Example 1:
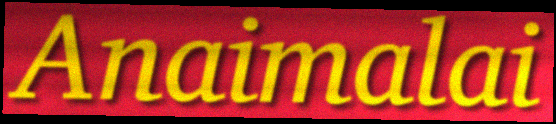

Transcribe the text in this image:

Anaimalai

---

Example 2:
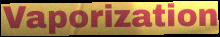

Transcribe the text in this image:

Vaporization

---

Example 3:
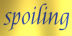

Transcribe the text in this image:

spoiling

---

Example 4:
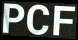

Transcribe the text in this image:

PCF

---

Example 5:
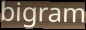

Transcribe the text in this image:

bigram